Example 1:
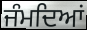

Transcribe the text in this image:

ਜੰਮਦਿਆਂ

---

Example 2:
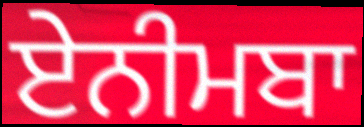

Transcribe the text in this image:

ਏਨੀਮਬਾ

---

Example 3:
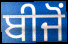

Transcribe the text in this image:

ਬੀਜੋਂ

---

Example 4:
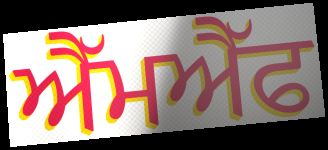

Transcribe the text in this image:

ਐੱਮਐੱਫ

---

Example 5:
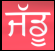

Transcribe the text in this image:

ਜੱਡੂ